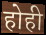
होही